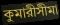
কুমারীসীমা